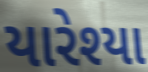
યારેશ્યા